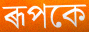
ৰূপকে